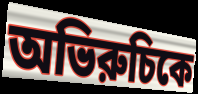
অভিরুচিকে